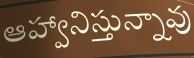
ఆహ్వానిస్తున్నావు